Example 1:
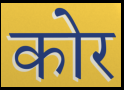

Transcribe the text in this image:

कोर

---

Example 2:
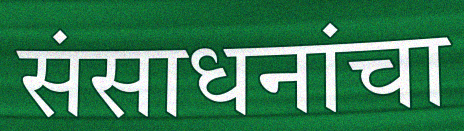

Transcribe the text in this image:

संसाधनांचा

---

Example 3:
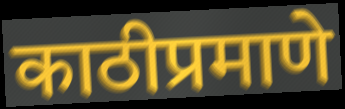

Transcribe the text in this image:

काठीप्रमाणे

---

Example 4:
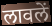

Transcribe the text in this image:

लावलें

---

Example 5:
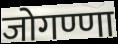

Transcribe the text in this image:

जोगण्णा